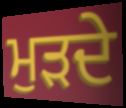
ਮੁਡ਼ਦੇ